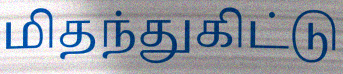
மிதந்துகிட்டு